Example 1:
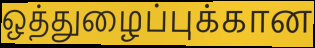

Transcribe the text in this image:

ஒத்துழைப்புக்கான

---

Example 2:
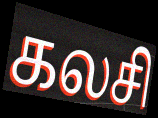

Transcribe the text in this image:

கலசி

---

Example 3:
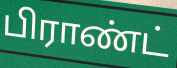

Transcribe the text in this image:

பிராண்ட்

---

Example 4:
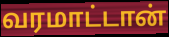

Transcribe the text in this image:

வரமாட்டான்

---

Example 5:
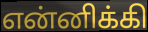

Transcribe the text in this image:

என்னிக்கி